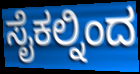
ಸೈಕಲ್ನಿಂದ